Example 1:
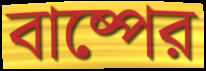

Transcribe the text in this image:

বাষ্পের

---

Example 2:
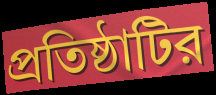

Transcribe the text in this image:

প্রতিষ্ঠাটির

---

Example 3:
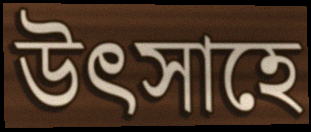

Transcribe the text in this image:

উৎসাহে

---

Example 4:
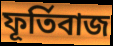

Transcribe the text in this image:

ফূর্তিবাজ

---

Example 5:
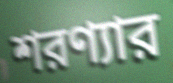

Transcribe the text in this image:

শরণ্যার